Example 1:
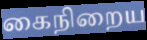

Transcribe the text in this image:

கைநிறைய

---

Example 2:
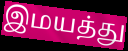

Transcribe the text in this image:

இமயத்து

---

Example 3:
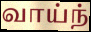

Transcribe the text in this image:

வாய்ந்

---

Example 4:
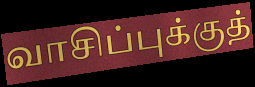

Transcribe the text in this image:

வாசிப்புக்குத்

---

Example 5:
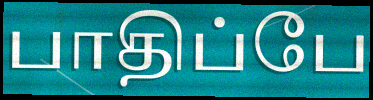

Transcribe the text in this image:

பாதிப்பே